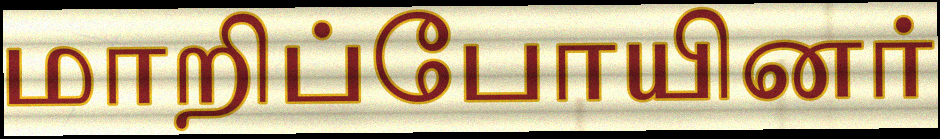
மாறிப்போயினர்